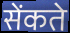
सेंकते